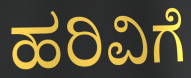
ಹರಿವಿಗೆ